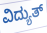
ವಿದ್ಯುತ್